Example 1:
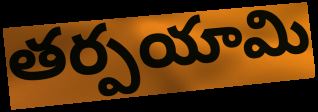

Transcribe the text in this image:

తర్పయామి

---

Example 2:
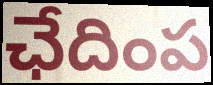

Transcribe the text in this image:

ఛేదింప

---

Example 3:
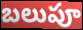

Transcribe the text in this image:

బలుపూ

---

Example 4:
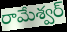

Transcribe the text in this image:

రామేశ్వర్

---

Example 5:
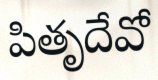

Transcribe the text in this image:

పితృదేవో